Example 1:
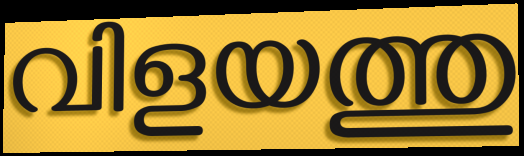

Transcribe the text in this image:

വിളയത്തു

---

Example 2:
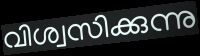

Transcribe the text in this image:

വിശ്വസിക്കുന്നു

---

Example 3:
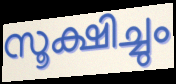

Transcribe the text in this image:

സൂക്ഷിച്ചും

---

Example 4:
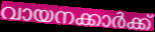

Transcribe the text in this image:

വായനക്കാർക്ക്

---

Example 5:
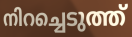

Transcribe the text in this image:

നിറച്ചെടുത്ത്